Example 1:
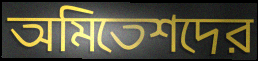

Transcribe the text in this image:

অমিতেশদের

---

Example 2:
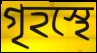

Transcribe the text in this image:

গৃহস্থে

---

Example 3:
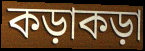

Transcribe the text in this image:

কড়াকড়া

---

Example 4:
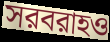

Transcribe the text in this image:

সরবরাহও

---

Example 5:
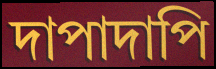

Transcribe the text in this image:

দাপাদাপি